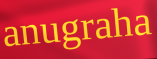
anugraha